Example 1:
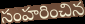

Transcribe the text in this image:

సంహరించిన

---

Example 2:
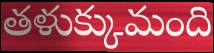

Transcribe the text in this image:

తళుక్కుమంది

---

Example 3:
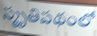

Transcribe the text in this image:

స్మృతిపథంలో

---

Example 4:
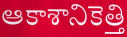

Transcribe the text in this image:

ఆకాశానికెత్తి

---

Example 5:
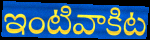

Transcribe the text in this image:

ఇంటివాకిట